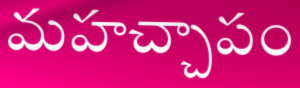
మహచ్చాపం